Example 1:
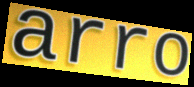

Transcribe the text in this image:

arro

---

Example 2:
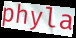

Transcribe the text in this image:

phyla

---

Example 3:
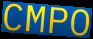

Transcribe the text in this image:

CMPO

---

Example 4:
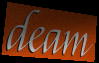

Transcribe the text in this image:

deam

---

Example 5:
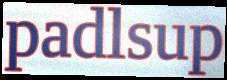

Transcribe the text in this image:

padlsup